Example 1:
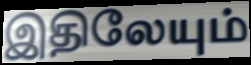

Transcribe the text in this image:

இதிலேயும்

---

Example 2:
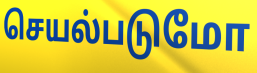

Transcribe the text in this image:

செயல்படுமோ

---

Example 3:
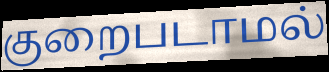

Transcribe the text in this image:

குறைபடாமல்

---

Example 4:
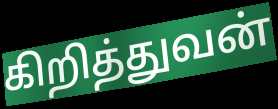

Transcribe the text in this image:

கிறித்துவன்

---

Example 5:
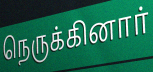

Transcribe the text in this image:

நெருக்கினார்